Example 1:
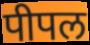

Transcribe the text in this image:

पीपल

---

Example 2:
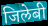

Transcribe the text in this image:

जिलेबी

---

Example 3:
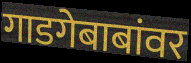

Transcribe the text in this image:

गाडगेबाबांवर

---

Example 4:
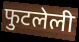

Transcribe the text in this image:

फुटलेली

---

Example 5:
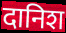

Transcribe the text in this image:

दानिश